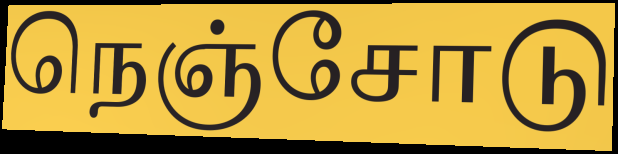
நெஞ்சோடு